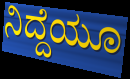
ನಿದ್ದೆಯೂ